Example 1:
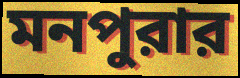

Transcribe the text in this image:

মনপুরার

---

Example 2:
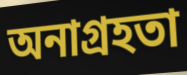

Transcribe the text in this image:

অনাগ্রহতা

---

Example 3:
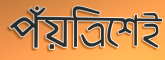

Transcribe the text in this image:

পঁয়ত্রিশেই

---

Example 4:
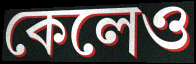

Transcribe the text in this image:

কেলেও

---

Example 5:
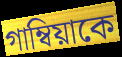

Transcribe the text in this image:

গাম্বিয়াকে